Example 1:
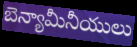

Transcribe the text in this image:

బెన్యామీనీయులు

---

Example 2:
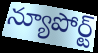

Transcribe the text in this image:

న్యూపోర్ట్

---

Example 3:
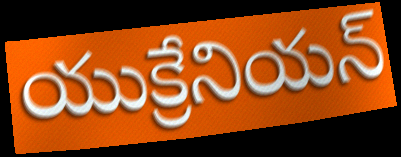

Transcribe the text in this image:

యుక్రేనియన్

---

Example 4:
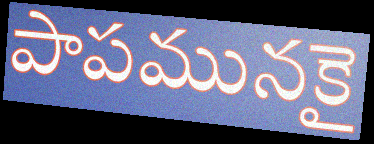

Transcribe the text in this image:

పాపమునకై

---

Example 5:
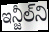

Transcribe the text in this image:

ఇన్జీల్‌ని